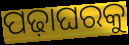
ପଢ଼ାଘରକୁ